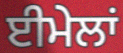
ਈਮੇਲਾਂ